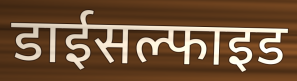
डाईसल्फाइड